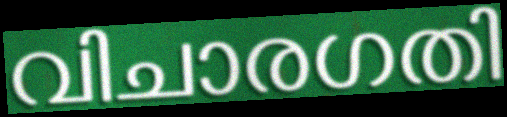
വിചാരഗതി